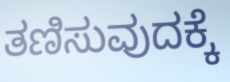
ತಣಿಸುವುದಕ್ಕೆ